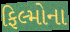
ફિલ્મોના